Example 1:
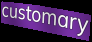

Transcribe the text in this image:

customary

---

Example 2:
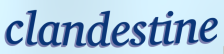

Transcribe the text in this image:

clandestine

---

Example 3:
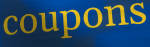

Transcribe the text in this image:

coupons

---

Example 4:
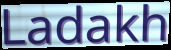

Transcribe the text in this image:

Ladakh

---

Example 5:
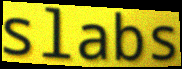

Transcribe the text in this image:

slabs